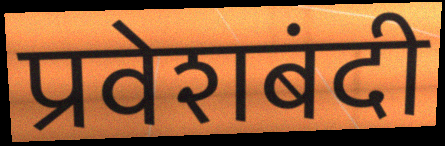
प्रवेशबंदी